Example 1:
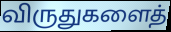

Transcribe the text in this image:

விருதுகளைத்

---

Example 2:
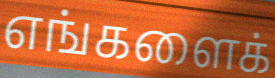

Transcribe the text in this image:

எங்களைக்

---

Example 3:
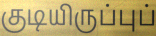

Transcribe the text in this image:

குடியிருப்புப்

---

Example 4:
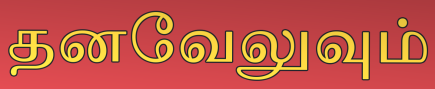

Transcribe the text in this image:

தனவேலுவும்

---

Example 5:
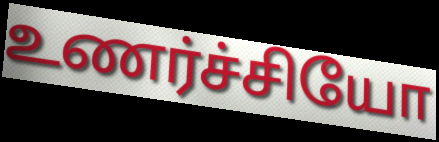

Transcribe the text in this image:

உணர்ச்சியோ